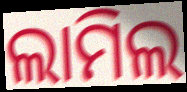
ଲାମିଲ